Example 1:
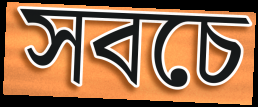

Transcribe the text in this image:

সবচে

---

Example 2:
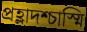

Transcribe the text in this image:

প্রহ্লাদশ্চাস্মি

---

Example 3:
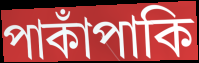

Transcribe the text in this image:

পাকাঁপাকি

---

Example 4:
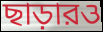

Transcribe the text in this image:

ছাড়ারও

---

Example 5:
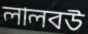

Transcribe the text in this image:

লালবউ